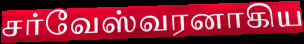
சர்வேஸ்வரனாகிய